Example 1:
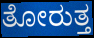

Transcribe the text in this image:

ತೋರುತ್ತ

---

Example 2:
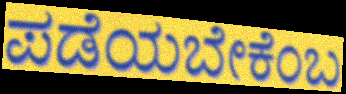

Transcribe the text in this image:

ಪಡೆಯಬೇಕೆಂಬ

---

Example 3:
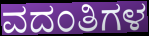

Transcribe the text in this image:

ವದಂತಿಗಳ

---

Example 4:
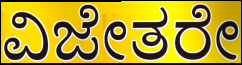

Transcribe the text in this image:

ವಿಜೇತರೇ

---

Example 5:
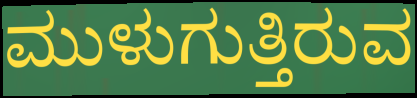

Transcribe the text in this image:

ಮುಳುಗುತ್ತಿರುವ